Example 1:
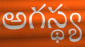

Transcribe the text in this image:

అగస్థ్య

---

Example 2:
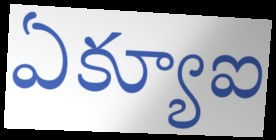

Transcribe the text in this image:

ఏక్యూఐ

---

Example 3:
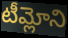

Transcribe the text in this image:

టీమ్లోని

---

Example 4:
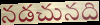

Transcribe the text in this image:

నడచునది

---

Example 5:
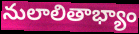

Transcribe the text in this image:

నులాలితాభ్యాం